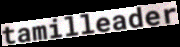
tamilleader